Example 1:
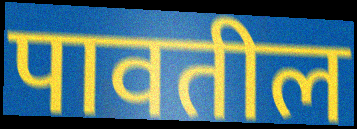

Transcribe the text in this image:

पावतील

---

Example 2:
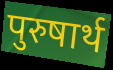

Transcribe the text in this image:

पुरुषार्थ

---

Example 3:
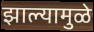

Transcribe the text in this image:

झाल्यामुळे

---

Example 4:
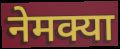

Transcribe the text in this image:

नेमक्या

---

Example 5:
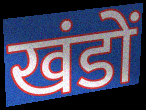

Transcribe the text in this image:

खंडों